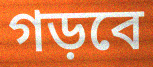
গড়বে